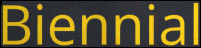
Biennial